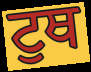
ਟੁਥ